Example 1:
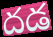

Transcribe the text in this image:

దడ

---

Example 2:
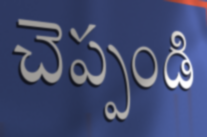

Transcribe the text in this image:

చెప్పండి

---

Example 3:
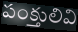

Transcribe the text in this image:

పంక్తులివి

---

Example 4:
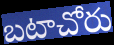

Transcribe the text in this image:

బటాచోరు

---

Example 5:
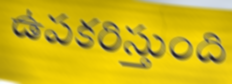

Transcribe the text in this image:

ఉపకరిస్తుంది